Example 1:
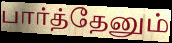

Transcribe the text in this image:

பார்த்தேனும்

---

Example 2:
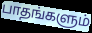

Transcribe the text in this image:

பாதங்களும்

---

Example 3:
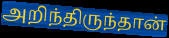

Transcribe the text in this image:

அறிந்திருந்தான்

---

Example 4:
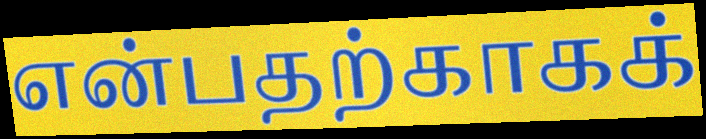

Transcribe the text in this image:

என்பதற்காகக்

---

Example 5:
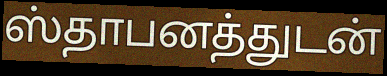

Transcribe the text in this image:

ஸ்தாபனத்துடன்